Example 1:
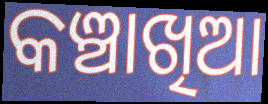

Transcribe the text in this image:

କଞ୍ଚାଖିଆ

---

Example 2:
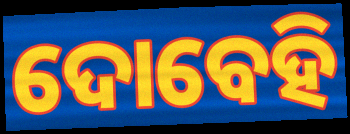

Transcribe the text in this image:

ଦୋବେହି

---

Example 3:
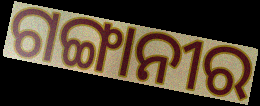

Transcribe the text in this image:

ଗଙ୍ଗାନୀର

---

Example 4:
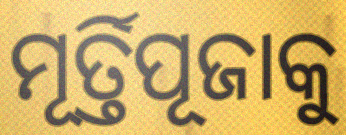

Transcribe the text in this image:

ମୂର୍ତ୍ତିପୂଜାକୁ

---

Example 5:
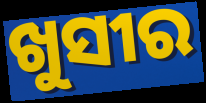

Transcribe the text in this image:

ଖୁସୀର